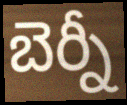
బెర్నీ